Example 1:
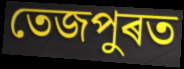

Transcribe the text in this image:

তেজপুৰত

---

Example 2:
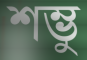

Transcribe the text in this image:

শম্ভু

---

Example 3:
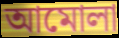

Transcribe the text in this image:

আমোলা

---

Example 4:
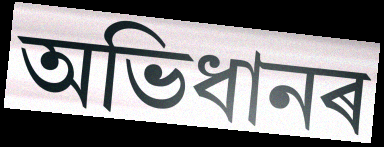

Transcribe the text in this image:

অভিধানৰ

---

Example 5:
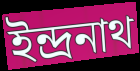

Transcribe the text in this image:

ইন্দ্ৰনাথ